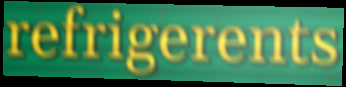
refrigerents